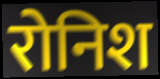
रोनिश